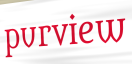
purview